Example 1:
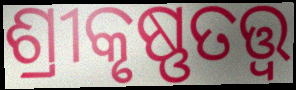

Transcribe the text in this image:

ଶ୍ରୀକୃଷ୍ଣତତ୍ତ୍ଵ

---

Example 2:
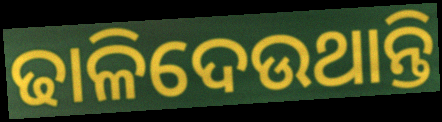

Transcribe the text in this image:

ଢାଳିଦେଉଥାନ୍ତି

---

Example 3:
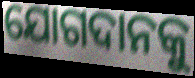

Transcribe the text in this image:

ଯୋଗଦାନକୁ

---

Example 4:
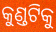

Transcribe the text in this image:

କୁଣ୍ଡଟିକୁ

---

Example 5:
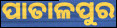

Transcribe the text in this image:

ପାତାଳପୁର